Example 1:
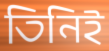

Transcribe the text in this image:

তিনিই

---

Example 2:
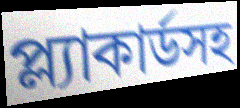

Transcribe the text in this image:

প্ল্যাকার্ডসহ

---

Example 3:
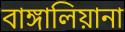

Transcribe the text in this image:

বাঙ্গালিয়ানা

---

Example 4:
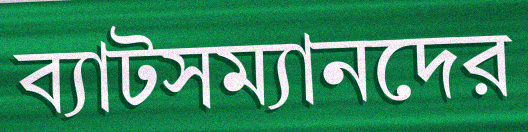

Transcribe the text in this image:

ব্যাটসম্যানদের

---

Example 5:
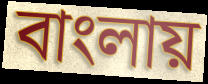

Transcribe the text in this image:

বাংলায়